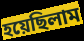
হয়েছিলাম